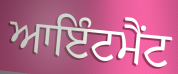
ਆਇੰਟਮੈਂਟ